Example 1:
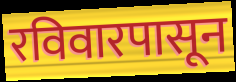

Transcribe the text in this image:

रविवारपासून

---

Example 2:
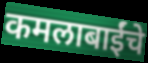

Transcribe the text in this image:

कमलाबाईंचे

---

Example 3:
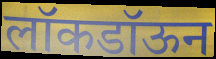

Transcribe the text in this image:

लॉकडॉऊन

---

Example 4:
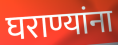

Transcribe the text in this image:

घराण्यांना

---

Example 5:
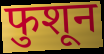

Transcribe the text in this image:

फुशून